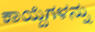
ಕಾಯ್ದೆಗಳನ್ನು